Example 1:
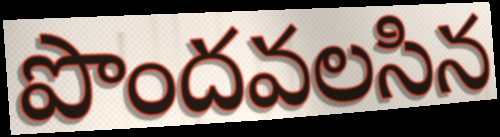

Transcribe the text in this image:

పొందవలసిన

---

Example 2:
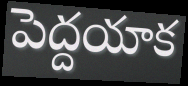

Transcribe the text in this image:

పెద్దయాక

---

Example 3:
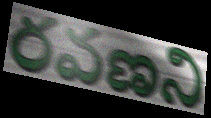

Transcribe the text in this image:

రవణని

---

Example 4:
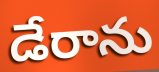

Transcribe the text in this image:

డేరాను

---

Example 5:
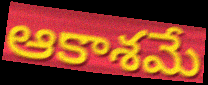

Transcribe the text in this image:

ఆకాశమే